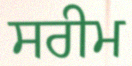
ਸਰੀਮ